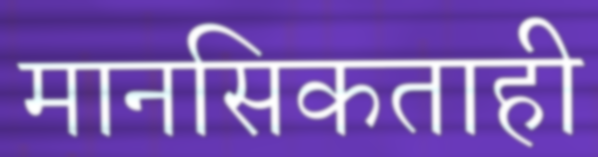
मानसिकताही